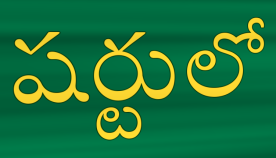
షర్టులో